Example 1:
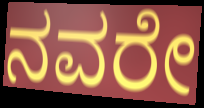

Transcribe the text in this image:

ನವರೇ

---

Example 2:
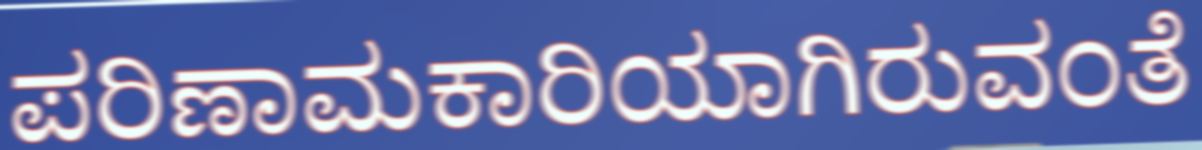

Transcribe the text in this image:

ಪರಿಣಾಮಕಾರಿಯಾಗಿರುವಂತೆ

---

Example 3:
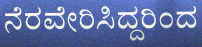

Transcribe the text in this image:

ನೆರವೇರಿಸಿದ್ದರಿಂದ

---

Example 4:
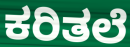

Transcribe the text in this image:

ಕರಿತಲೆ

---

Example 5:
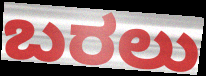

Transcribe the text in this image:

ಬರಲು